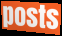
posts